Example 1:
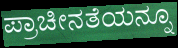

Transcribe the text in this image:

ಪ್ರಾಚೀನತೆಯನ್ನೂ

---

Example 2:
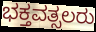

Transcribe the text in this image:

ಭಕ್ತವತ್ಸಲರು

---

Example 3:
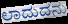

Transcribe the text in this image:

ಲಾದುದನು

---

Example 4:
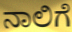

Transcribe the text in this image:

ನಾಲಿಗೆ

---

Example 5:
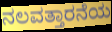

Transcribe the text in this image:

ನಲವತ್ತಾರನೆಯ